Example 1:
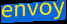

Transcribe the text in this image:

envoy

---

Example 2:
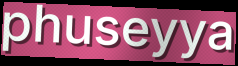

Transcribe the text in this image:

phuseyya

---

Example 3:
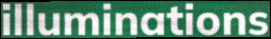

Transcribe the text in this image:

illuminations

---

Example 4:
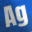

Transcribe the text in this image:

Ag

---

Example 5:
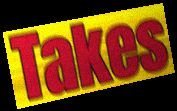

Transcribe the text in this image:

Takes